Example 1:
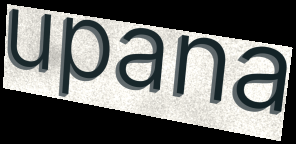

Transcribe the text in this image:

upana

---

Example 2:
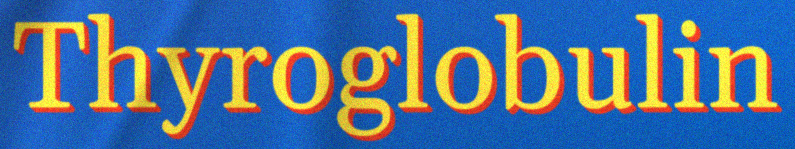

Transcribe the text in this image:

Thyroglobulin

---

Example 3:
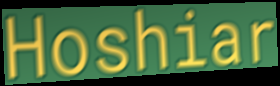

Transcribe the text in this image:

Hoshiar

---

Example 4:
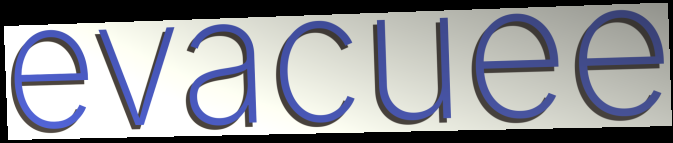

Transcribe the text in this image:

evacuee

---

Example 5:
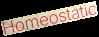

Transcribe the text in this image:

Homeostatic